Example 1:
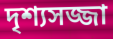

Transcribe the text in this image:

দৃশ্যসজ্জা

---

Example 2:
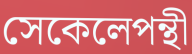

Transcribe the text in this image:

সেকেলেপন্থী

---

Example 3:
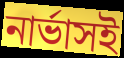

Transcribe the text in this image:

নার্ভাসই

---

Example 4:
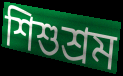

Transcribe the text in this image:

শিশুশ্রম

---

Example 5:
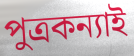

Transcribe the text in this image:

পুত্রকন্যাই